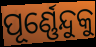
ପୂର୍ଣ୍ଣେନ୍ଦୁକୁ